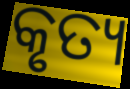
କୃତ୍ଯ